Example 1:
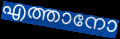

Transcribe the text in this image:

എത്താനോ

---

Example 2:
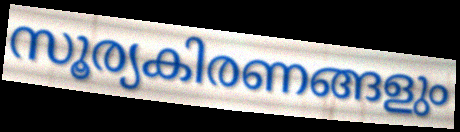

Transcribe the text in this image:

സൂര്യകിരണങ്ങളും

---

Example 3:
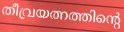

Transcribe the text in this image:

തീവ്രയത്നത്തിന്റെ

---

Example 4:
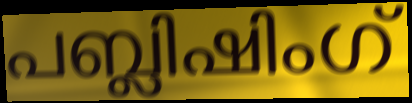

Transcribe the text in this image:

പബ്ലിഷിംഗ്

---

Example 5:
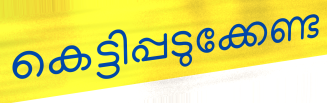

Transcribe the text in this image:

കെട്ടിപ്പടുക്കേണ്ട